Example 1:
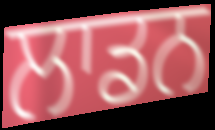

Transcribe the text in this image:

ਲਾਡਨ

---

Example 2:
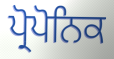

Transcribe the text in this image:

ਪ੍ਰੋਪੋਨਿਕ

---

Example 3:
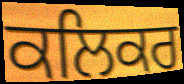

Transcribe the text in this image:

ਕਲਿਕਰ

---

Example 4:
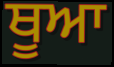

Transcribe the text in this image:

ਥੂਆ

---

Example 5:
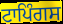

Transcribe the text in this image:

ਟਾਪਿੰਗਸ